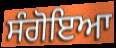
ਸੰਗੋਇਆ